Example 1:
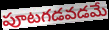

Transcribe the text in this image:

పూటగడవడమే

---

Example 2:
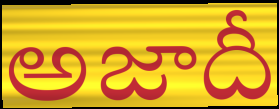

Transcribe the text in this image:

అజాదీ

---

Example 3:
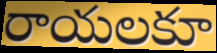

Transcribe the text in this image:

రాయలకూ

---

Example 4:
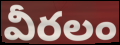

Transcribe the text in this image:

వీరలం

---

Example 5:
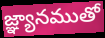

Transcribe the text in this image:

జ్ఞ్యానముతో